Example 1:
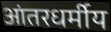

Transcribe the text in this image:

आंतरधर्मीय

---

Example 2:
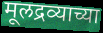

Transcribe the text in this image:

मूलद्रव्याच्या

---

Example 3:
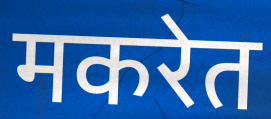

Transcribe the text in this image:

मकरेत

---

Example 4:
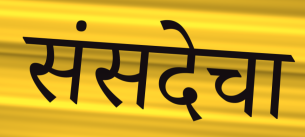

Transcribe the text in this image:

संसदेचा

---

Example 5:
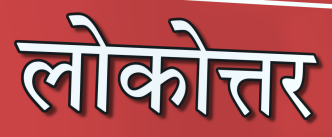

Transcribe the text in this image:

लोकोत्तर